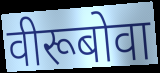
वीरूबोवा